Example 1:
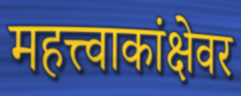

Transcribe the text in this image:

महत्त्वाकांक्षेवर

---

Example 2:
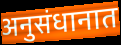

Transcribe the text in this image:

अनुसंधानात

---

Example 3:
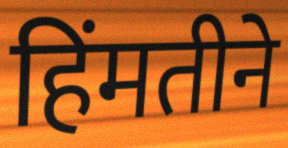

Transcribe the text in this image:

हिंमतीने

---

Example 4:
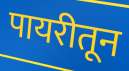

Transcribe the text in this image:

पायरीतून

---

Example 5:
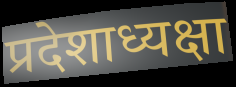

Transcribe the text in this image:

प्रदेशाध्यक्षा